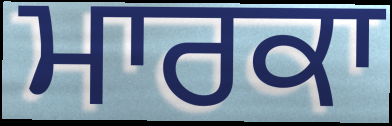
ਮਾਰਕਾ